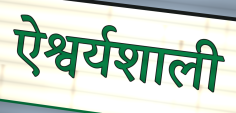
ऐश्वर्यशाली